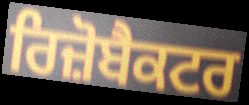
ਰਿਜ਼ੋਬੈਕਟਰ